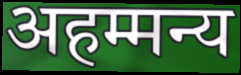
अहम्मन्य